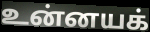
உன்னயக்